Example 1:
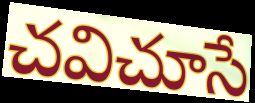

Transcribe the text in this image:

చవిచూసే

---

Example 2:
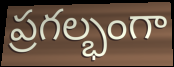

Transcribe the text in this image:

ప్రగల్భంగా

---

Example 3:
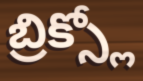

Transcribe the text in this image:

బ్రిక్స్లో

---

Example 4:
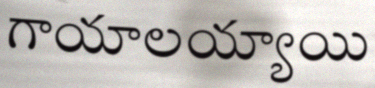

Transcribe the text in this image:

గాయాలయ్యాయి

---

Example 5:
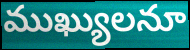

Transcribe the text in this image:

ముఖ్యులనూ